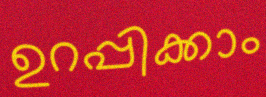
ഉറപ്പിക്കാം